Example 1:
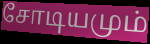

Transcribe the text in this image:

சோடியமும்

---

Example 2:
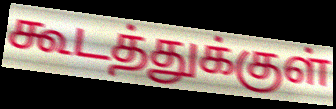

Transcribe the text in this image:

கூடத்துக்குள்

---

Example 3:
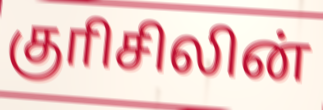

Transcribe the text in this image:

குரிசிலின்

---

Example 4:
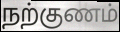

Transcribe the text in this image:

நற்குணம்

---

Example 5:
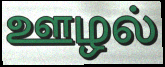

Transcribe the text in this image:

ஊழல்